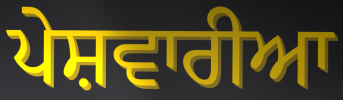
ਪੇਸ਼ਵਾਰੀਆ